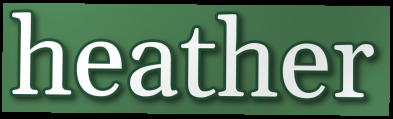
heather